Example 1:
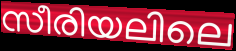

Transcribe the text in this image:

സീരിയലിലെ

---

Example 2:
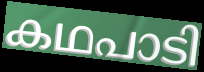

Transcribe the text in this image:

കഥപാടി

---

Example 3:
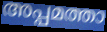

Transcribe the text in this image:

അപ്പമത്താ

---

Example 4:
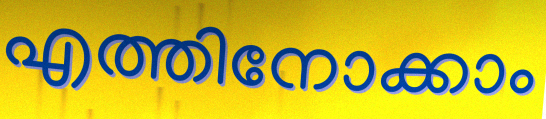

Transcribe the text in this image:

എത്തിനോക്കാം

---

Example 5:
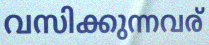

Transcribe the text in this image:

വസിക്കുന്നവര്